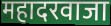
महादरवाजा